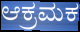
ಆಕ್ರಮಕ